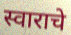
स्वाराचे